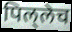
पिल्लेच